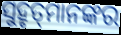
ସୁହୃତ୍‌ମାନଙ୍କର